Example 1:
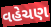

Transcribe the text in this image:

વહેચણ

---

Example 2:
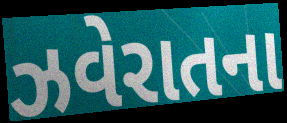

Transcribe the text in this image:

ઝવેરાતના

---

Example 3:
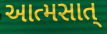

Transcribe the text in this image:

આત્મસાત્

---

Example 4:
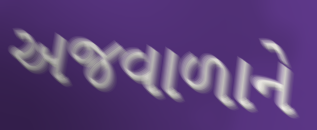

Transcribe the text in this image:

અજવાળાને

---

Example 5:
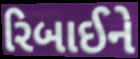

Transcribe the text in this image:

રિબાઈને